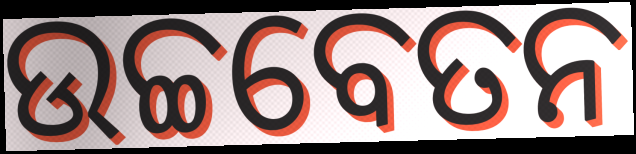
ଉଚ୍ଚବେତନ